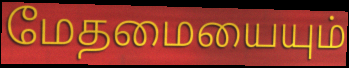
மேதமையையும்